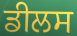
ਡੀਲਸ